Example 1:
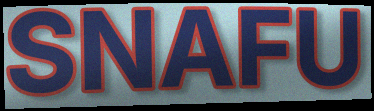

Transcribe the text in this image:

SNAFU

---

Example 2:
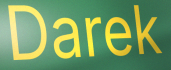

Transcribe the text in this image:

Darek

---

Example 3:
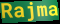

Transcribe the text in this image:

Rajma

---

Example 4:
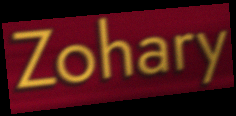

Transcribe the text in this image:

Zohary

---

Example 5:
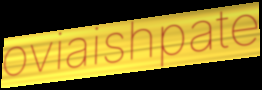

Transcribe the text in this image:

oviaishpate